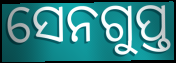
ସେନଗୁପ୍ତ